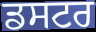
ਡਸਟਰ